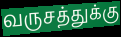
வருசத்துக்கு